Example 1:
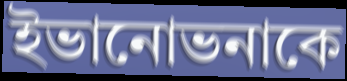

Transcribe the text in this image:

ইভানোভনাকে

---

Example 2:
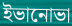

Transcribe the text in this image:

ইভানোভা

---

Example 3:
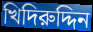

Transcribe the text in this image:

খিদিরুদ্দিন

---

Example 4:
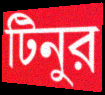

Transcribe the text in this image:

টিনুর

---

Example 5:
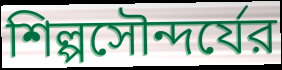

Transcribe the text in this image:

শিল্পসৌন্দর্যের